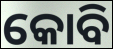
କୋବି